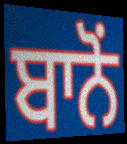
ਬਾਨੋਂ